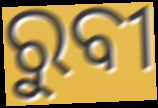
ରୁବୀ